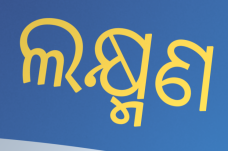
ଲକ୍ଷ୍ମଣ